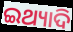
ଇଥ୍ୟାଦି